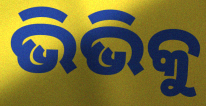
ଭିଭିକୁ